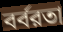
বর্বরতা